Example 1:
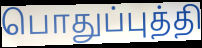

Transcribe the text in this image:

பொதுப்புத்தி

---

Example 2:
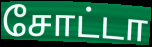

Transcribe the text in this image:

சோட்டா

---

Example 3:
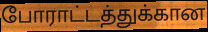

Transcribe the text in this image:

போராட்டத்துக்கான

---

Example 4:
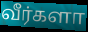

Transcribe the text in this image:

வீர்களா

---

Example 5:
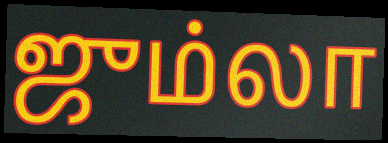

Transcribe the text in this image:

ஜும்லா